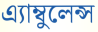
এ্যাম্বুলেন্স